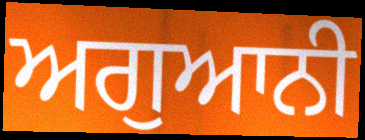
ਅਗੁਆਨੀ